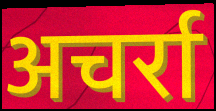
अचर्रा